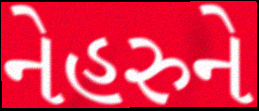
નેહરુને